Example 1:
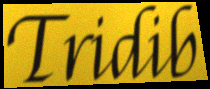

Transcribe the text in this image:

Tridib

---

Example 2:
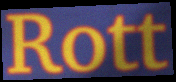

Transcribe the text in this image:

Rott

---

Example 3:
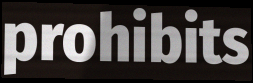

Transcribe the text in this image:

prohibits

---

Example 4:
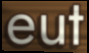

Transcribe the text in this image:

eut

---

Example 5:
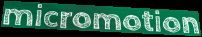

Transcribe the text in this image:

micromotion